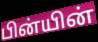
பின்யின்